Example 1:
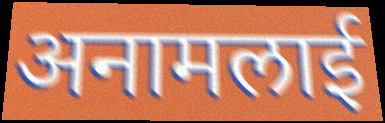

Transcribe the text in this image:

अनामलाई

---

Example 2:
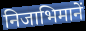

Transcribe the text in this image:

निजाभिमानें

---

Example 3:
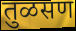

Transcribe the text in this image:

तुळसण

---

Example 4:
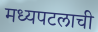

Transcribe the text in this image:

मध्यपटलाची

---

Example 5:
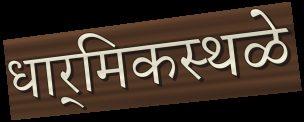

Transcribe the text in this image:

धार्मिकस्थळे